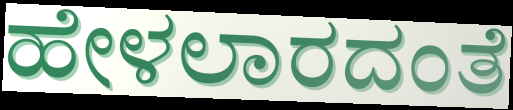
ಹೇಳಲಾರದಂತೆ